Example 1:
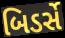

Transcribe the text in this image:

બિડર્સે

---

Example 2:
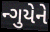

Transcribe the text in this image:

ન્ગુયેને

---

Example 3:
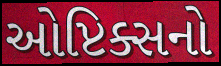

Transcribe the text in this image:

ઓપ્ટિક્સનો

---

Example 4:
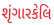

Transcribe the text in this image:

શૃંગારકેલિ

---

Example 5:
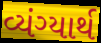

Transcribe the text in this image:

વ્યંગ્યાર્થ